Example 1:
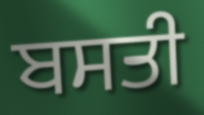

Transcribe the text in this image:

ਬਸਤੀ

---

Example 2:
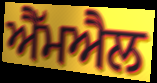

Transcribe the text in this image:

ਐੱਮਐਲ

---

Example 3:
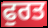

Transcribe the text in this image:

ਫੁਰਤ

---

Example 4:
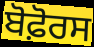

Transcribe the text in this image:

ਬੋਫ਼ੋਰਸ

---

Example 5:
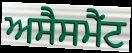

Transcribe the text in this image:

ਅਸੈਸਮੈਂਟ